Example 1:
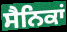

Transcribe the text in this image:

ਸੈਨਿਕਾਂ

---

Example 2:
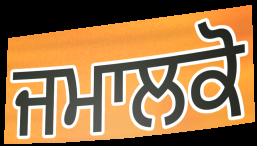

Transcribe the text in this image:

ਜਮਾਲਕੋ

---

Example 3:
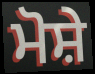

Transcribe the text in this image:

ਮੋਸ਼ੇ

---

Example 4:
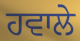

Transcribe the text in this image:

ਹਵਾਲੇ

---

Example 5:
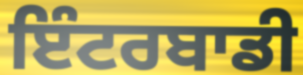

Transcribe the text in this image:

ਇੰਟਰਬਾਡੀ